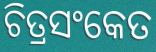
ଚିତ୍ରସଂକେତ